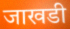
जाखडी